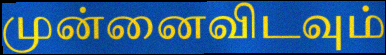
முன்னைவிடவும்